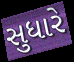
સુધારે